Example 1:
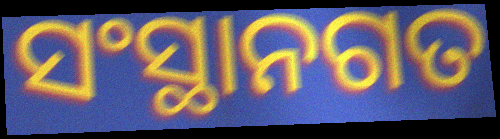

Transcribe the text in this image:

ସଂସ୍ଥାନଗତ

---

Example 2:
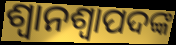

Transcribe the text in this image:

ଶ୍ୱାନଶ୍ୱାପଦଙ୍କ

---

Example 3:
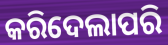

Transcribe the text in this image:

କରିଦେଲାପରି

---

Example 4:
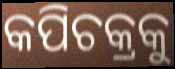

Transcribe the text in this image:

କପିଚକ୍ରକୁ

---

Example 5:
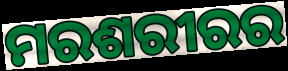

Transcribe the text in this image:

ମରଶରୀରର